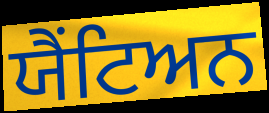
ਯੈਂਟਿਅਨ